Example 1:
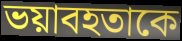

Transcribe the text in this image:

ভয়াবহতাকে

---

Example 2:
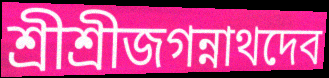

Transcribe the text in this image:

শ্রীশ্রীজগন্নাথদেব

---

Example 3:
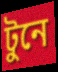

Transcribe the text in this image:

টুনে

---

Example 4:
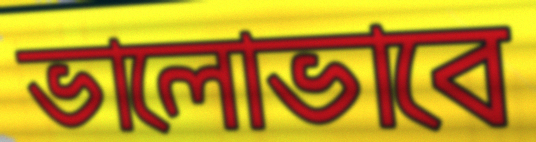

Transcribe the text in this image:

ভালোভাবে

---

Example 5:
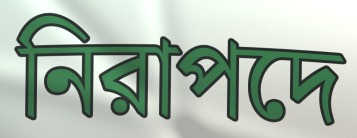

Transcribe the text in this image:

নিরাপদে